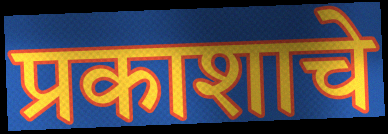
प्रकाशाचे